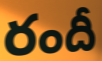
రందీ